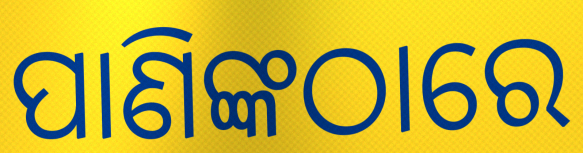
ପାଣିଙ୍କଠାରେ